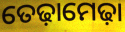
ତେଢ଼ାମେଢ଼ା